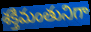
శక్తిమంతునిగా